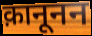
क़ानूनन